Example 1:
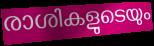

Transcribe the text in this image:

രാശികളുടെയും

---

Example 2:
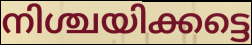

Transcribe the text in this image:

നിശ്ചയിക്കട്ടെ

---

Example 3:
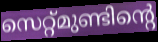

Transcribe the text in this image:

സെറ്റ്മുണ്ടിന്റെ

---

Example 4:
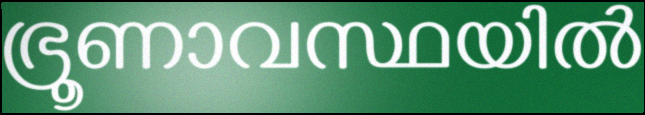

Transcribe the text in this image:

ഭ്രൂണാവസ്ഥയിൽ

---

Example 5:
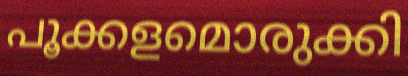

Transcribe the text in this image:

പൂക്കളമൊരുക്കി